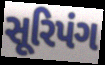
સૂરિપંગ